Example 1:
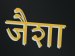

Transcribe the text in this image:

जैशा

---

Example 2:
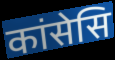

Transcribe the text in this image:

कांसेसि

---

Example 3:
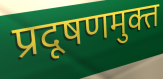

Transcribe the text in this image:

प्रदूषणमुक्त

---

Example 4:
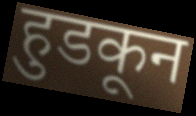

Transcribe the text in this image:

हुडकून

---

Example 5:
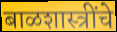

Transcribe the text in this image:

बाळशास्त्रींचे